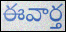
ఈవార్త